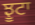
ਝੂਟਾ